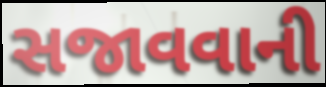
સજાવવાની